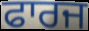
ਫਾਰਜ